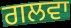
ਗਲਵਾ